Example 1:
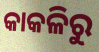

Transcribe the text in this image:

କାକଳିରୁ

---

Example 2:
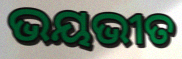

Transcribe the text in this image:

ଭୟଭୀତ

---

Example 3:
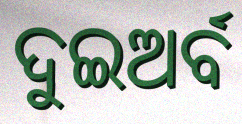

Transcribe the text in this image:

ଦୁଇଅର୍ବ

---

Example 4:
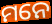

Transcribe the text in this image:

ମନେ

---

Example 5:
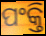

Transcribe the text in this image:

ପଂକ୍ତି